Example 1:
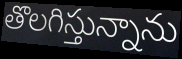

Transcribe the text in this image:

తొలగిస్తున్నాను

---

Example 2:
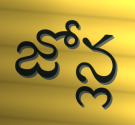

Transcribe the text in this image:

జోన్ల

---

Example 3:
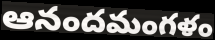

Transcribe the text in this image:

ఆనందమంగళం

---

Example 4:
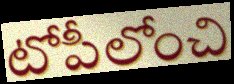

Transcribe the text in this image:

టోపీలోంచి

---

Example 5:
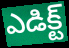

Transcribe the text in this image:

ఎడిక్ట్